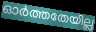
ഓർത്തതേയില്ല